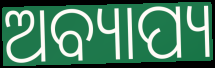
ଅବ୍ୟାପ୍ୟ